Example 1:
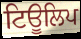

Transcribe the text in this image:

ਟਿਊਲਿਪ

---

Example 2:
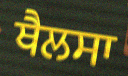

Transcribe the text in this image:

ਥੈਲਸਾ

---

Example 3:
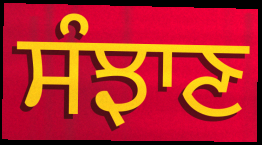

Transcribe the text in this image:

ਸੰਝਾਣ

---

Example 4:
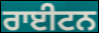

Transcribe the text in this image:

ਰਾਈਟਨ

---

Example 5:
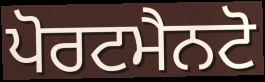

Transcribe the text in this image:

ਪੋਰਟਮੈਨਟੋ